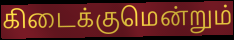
கிடைக்குமென்றும்